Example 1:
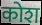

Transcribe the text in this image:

कोश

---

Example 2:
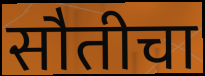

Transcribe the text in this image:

सौतीचा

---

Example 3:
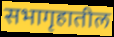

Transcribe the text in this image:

सभागृहातील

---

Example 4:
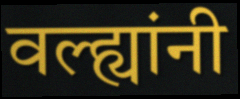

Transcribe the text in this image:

वल्ह्यांनी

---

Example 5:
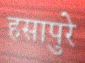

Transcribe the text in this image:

हसापुरे